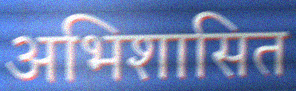
अभिशासित